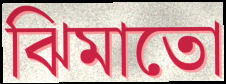
ঝিমাতো